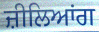
ਜ਼ੀਲਿਆਂਗ